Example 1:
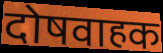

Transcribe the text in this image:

दोषवाहक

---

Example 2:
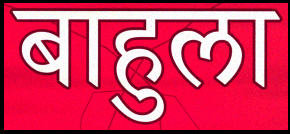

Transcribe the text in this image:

बाहुला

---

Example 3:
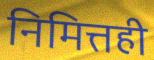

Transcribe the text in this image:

निमित्तही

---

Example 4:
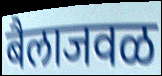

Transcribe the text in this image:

बैलाजवळ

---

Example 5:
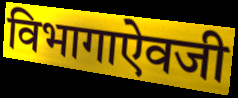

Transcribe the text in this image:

विभागाऐवजी